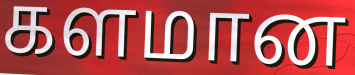
களமான